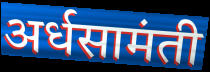
अर्धसामंती